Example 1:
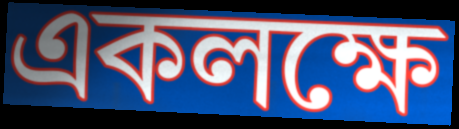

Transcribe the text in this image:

একলক্ষে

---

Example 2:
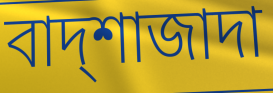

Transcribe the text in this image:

বাদ্শাজাদা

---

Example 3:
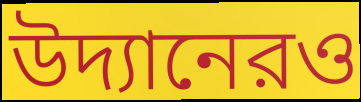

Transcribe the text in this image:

উদ্যানেরও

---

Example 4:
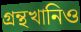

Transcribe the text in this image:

গ্রন্থখানিও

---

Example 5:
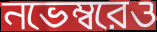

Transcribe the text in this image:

নভেম্বরেও